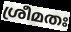
ശ്രീമതഃ